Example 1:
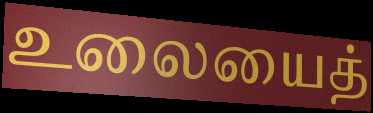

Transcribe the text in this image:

உலையைத்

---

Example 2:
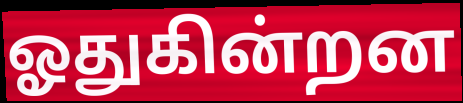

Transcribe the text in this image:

ஓதுகின்றன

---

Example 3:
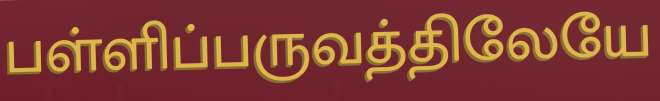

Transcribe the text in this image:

பள்ளிப்பருவத்திலேயே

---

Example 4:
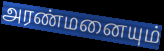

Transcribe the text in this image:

அரண்மனையும்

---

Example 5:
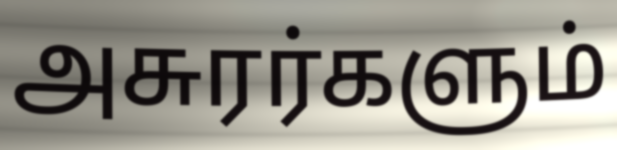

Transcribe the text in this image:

அசுரர்களும்